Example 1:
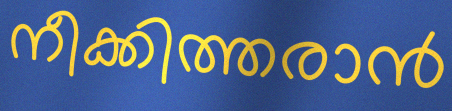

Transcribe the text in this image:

നീക്കിത്തരാൻ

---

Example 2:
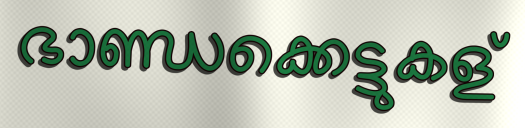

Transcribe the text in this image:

ഭാണ്ഡക്കെട്ടുകള്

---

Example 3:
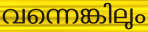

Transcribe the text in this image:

വന്നെങ്കിലും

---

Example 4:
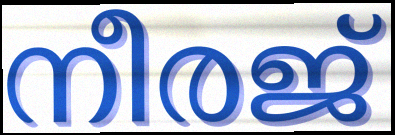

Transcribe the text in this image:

നീരജ്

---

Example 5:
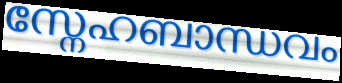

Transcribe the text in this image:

സ്നേഹബാന്ധവം